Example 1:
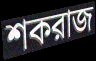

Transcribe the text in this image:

শকরাজ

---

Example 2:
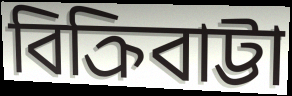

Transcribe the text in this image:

বিক্রিবাট্টা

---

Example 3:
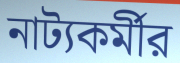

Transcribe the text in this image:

নাট্যকর্মীর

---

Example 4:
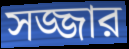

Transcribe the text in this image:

সজ্জার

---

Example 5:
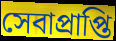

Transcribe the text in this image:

সেবাপ্রাপ্তি